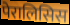
पेरालिसिस